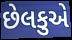
છેલકુએ